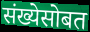
संख्येसोबत